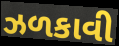
ઝળકાવી